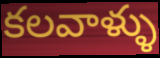
కలవాళ్ళు